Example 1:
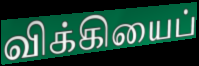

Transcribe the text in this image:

விக்கியைப்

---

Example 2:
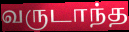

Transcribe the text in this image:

வருடாந்த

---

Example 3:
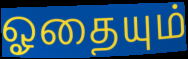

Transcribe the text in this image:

ஓதையும்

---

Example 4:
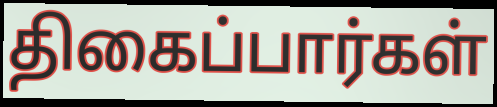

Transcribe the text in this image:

திகைப்பார்கள்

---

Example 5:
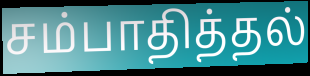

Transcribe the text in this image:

சம்பாதித்தல்